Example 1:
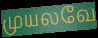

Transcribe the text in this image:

முயலவே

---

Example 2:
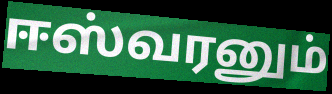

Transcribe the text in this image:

ஈஸ்வரனும்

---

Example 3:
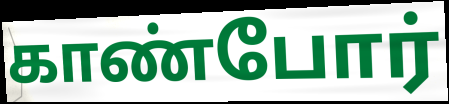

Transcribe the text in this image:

காண்போர்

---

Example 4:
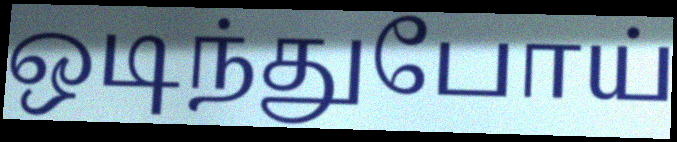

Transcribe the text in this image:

ஒடிந்துபோய்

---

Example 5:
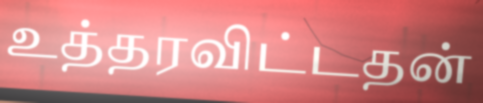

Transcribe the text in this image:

உத்தரவிட்டதன்